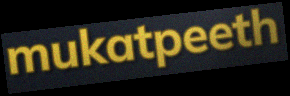
mukatpeeth